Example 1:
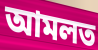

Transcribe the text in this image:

আমলত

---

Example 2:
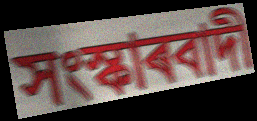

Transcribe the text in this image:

সংস্কাৰবাদী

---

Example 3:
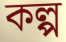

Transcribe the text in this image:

কল্প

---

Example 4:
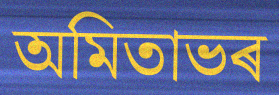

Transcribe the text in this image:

অমিতাভৰ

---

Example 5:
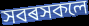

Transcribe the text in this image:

সবৰসকলে